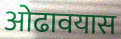
ओढावयास